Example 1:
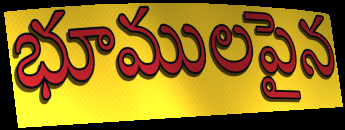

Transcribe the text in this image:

భూములపైన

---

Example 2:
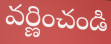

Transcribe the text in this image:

వర్ణించండి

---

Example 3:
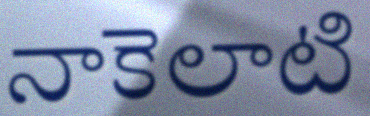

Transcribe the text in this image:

నాకెలాటి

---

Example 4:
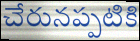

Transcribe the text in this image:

చేరునప్పటికి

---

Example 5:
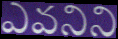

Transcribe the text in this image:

ఎవనిని